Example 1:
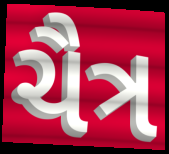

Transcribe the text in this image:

ચૈત્ર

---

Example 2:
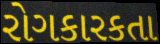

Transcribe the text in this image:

રોગકારકતા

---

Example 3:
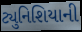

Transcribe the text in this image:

ટ્યુનિશિયાની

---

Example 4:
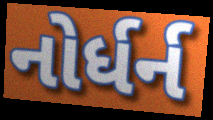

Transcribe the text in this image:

નોર્ધર્ન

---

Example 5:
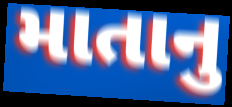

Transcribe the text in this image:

માતાનુ